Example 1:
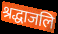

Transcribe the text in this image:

श्रद्धाजलि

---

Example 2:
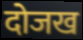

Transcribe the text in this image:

दोजख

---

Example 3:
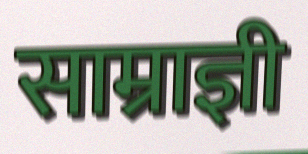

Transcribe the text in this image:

साम्राज्ञी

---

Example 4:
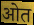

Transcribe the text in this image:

ओत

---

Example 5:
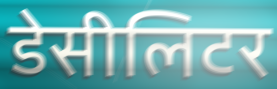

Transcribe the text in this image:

डेसीलिटर